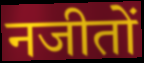
नजीतों